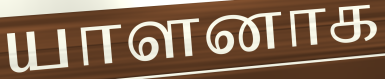
யாளனாக